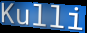
Kulli